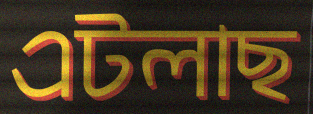
এটলাছ